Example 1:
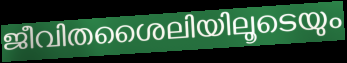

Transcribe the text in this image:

ജീവിതശൈലിയിലൂടെയും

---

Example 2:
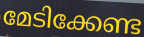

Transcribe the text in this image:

മേടിക്കേണ്ട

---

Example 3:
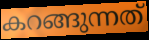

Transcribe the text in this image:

കറങ്ങുന്നത്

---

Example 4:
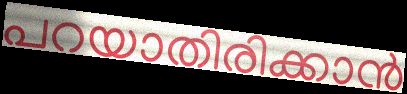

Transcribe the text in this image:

പറയാതിരിക്കാൻ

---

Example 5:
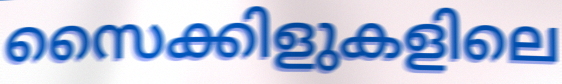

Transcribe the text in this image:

സൈക്കിളുകളിലെ